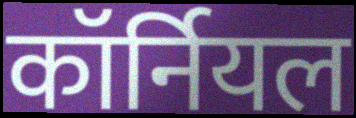
कॉर्नियल